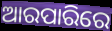
ଆରପାରିରେ